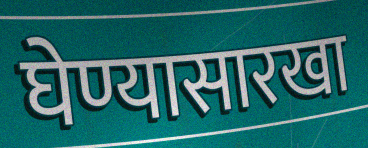
घेण्यासारखा